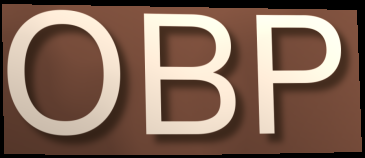
OBP